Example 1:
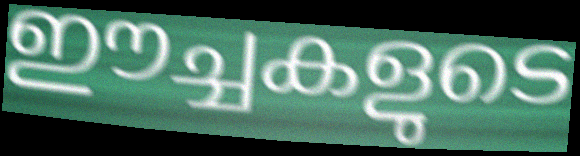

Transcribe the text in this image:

ഈച്ചകളുടെ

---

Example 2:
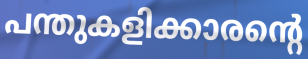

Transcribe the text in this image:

പന്തുകളിക്കാരന്റെ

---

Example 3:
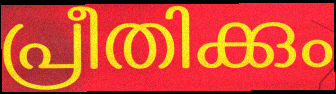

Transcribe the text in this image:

പ്രീതിക്കും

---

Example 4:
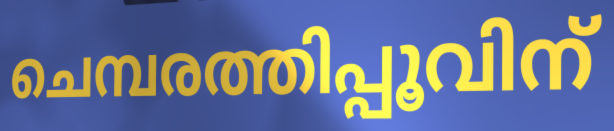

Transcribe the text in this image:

ചെമ്പരത്തിപ്പൂവിന്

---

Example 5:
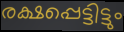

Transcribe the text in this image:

രക്ഷപ്പെട്ടിട്ടും